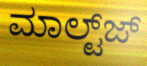
ಮಾಲ್ಟ್‌ಜ್